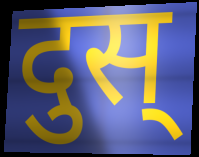
दुस्